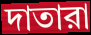
দাতারা